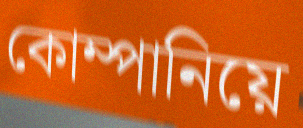
কোম্পানিয়ে